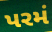
પરમં